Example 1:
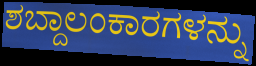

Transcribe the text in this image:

ಶಬ್ದಾಲಂಕಾರಗಳನ್ನು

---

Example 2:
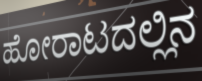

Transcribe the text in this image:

ಹೋರಾಟದಲ್ಲಿನ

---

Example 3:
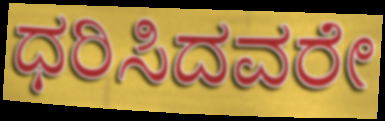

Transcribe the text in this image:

ಧರಿಸಿದವರೇ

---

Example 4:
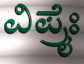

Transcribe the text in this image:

ವಿಪ್ರೈಃ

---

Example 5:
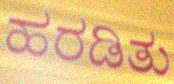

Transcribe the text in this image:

ಹರಡಿತು